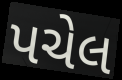
પચેલ